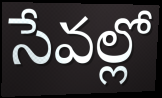
సేవల్లో